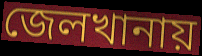
জেলখানায়